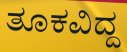
ತೂಕವಿದ್ದ